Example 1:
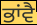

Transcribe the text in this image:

ਭਾਂਵੈ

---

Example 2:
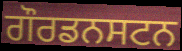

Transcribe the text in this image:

ਗੌਰਡਨਸਟਨ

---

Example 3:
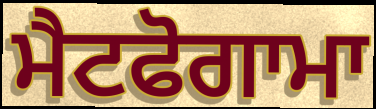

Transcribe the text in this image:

ਮੈਟਫੋਗਾਮਾ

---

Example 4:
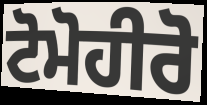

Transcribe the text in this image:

ਟੋਮੋਹੀਰੋ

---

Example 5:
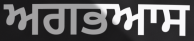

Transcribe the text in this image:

ਅਗਭਆਸ